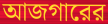
আজগারের